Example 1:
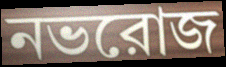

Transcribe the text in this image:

নভরোজ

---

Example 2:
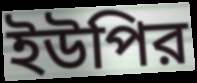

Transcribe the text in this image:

ইউপির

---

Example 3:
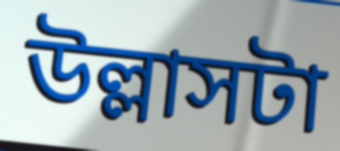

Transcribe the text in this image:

উল্লাসটা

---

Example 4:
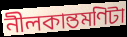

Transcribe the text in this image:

নীলকান্তমণিটা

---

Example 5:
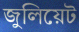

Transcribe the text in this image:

জুলিয়েট